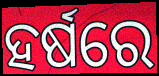
ହର୍ଷରେ